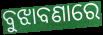
ବୁଝାବଣାରେ